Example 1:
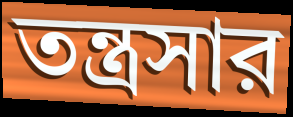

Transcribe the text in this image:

তন্ত্রসার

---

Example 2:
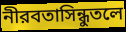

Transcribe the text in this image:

নীরবতাসিন্ধুতলে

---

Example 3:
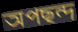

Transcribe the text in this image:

অপছন্দ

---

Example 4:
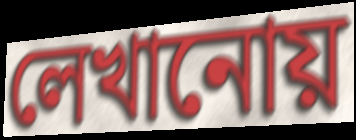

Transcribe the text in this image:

লেখানোয়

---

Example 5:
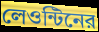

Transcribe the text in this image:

লেওন্টিনের